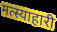
मत्स्याहारी